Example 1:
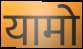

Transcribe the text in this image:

यामो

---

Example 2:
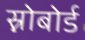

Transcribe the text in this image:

स्नोबोर्ड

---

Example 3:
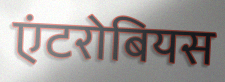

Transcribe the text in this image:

एंटरोबियस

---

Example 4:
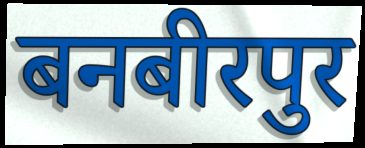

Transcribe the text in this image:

बनबीरपुर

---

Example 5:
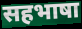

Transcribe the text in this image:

सहभाषा